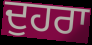
ਦੁਹਰਾ